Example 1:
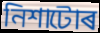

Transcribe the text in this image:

নিশাটোৰ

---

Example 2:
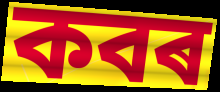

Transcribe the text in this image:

কবৰ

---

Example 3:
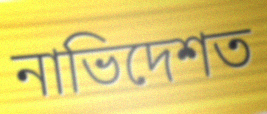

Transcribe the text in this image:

নাভিদেশত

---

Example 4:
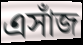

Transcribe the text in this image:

এসাঁজ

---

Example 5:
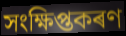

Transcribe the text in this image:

সংক্ষিপ্তকৰণ